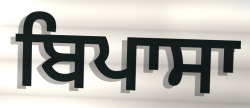
ਬਿਪਾਸਾ